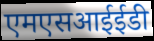
एमएसआईईडी